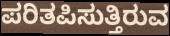
ಪರಿತಪಿಸುತ್ತಿರುವ